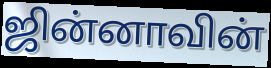
ஜின்னாவின்